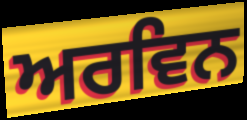
ਅਰਵਿਨ